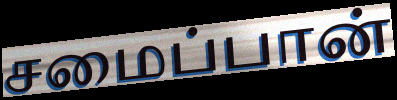
சமைப்பான்